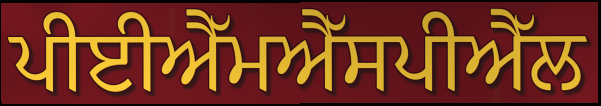
ਪੀਈਐੱਮਐੱਸਪੀਐੱਲ